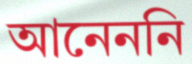
আনেননি